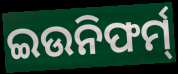
ଇଉନିଫର୍ମ୍